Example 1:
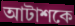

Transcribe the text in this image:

আটাশকে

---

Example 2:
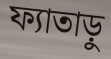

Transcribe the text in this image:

ফ্যাতাড়ু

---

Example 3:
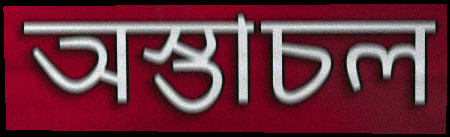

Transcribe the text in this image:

অস্তাচল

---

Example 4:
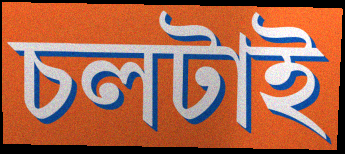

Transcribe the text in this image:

চলটাই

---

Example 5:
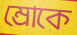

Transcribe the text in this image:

ম্রোকে